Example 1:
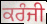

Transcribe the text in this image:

ਕਰੰਜੀ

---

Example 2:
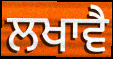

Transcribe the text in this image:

ਲਖਾਵੈ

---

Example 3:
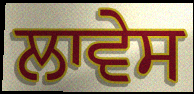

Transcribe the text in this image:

ਲਾਵੇਸ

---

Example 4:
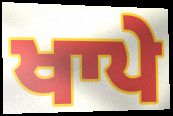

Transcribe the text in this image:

ਖਾਪੇ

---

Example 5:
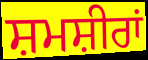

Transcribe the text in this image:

ਸ਼ਮਸ਼ੀਰਾਂ